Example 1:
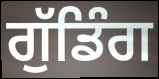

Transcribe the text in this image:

ਗੁੱਡਿੰਗ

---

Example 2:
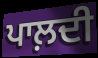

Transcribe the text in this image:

ਪਾਲ਼ਦੀ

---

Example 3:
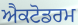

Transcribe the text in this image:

ਐਕਟੋਡਰਮ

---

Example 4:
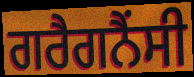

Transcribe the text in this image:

ਗਰੈਗਨੈਂਸੀ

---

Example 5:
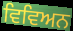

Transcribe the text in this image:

ਵਿਵਿਅਨ